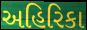
અહિરિકા